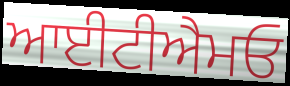
ਆਈਟੀਐਮਓ